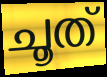
ചൂത്